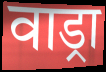
वाड्रा